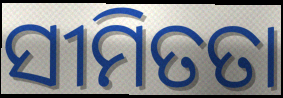
ସୀମିତତା